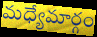
మధ్యేమార్గం